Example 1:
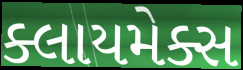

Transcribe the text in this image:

ક્લાયમેક્સ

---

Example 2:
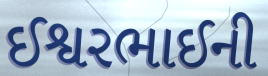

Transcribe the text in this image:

ઈશ્વરભાઈની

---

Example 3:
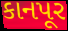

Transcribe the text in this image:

કાનપૂર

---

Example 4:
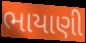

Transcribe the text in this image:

ભાયાણી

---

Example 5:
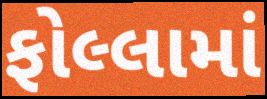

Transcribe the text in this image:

ફોલ્લામાં